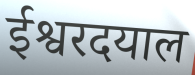
ईश्वरदयाल